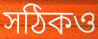
সঠিকও